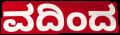
ವದಿಂದ